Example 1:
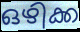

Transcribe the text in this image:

ഒഴിക്ക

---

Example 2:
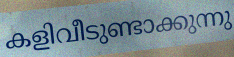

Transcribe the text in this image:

കളിവീടുണ്ടാക്കുന്നു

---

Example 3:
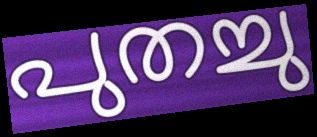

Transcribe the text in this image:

പുതച്ചു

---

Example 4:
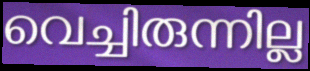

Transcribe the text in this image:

വെച്ചിരുന്നില്ല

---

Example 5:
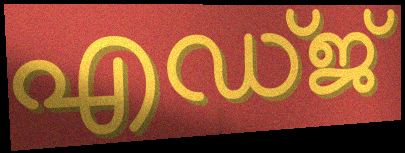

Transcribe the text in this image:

എഡ്ജ്